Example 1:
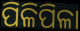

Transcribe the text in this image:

ପିଳିପିଳା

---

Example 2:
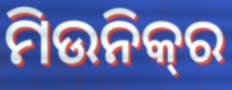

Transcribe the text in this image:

ମିଉନିକ୍‌ର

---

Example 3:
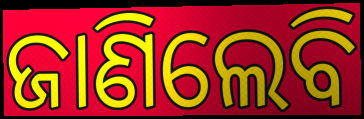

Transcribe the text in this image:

ଜାଣିଲେବି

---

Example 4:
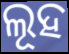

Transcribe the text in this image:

ଲୂହ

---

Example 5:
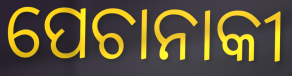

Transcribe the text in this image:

ପେଚାନାକୀ